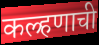
कल्हणाची